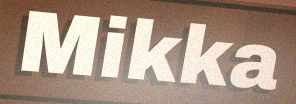
Mikka